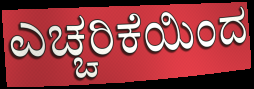
ಎಚ್ಚರಿಕೆಯಿಂದ